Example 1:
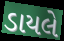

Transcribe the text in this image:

ડાયલે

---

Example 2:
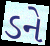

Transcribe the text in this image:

ડને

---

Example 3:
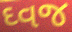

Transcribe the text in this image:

ઘ્વજ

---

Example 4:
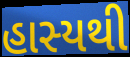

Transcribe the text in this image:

હાસ્યથી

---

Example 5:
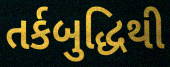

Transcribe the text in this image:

તર્કબુદ્ધિથી